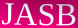
JASB